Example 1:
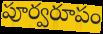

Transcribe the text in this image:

పూర్వరూపం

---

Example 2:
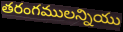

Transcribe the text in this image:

తరంగములన్నియు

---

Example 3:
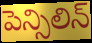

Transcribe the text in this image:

పెన్సిలిన్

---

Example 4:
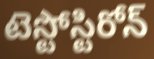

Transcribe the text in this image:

టెస్టోస్టిరోన్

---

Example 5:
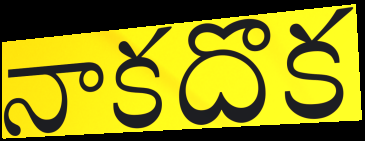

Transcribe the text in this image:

నాకదొక